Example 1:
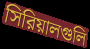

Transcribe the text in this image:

সিরিয়ালগুলি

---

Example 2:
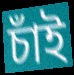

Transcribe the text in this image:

চাঁই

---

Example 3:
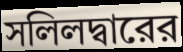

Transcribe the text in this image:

সলিলদ্বারের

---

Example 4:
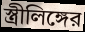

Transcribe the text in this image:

স্ত্রীলিঙ্গের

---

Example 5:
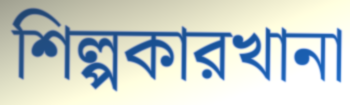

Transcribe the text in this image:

শিল্পকারখানা